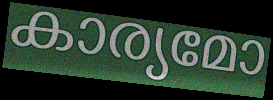
കാര്യമോ